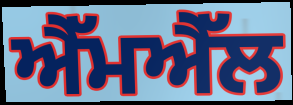
ਐੱਮਐੱਲ